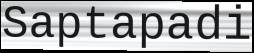
Saptapadi